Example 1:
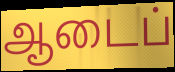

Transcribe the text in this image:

ஆடைப்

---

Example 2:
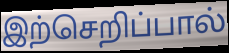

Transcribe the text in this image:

இற்செறிப்பால்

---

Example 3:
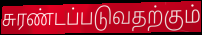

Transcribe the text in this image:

சுரண்டப்படுவதற்கும்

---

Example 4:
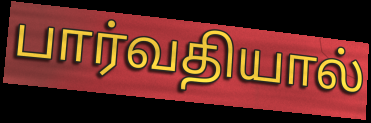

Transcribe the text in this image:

பார்வதியால்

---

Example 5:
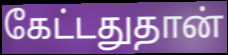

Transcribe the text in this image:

கேட்டதுதான்